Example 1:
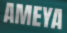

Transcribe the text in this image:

AMEYA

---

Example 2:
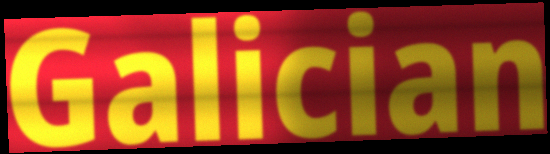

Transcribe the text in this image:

Galician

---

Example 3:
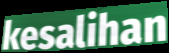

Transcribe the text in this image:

kesalihan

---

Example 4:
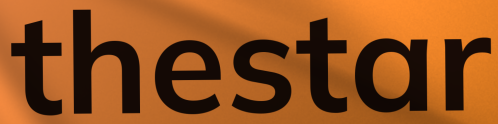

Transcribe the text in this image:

thestar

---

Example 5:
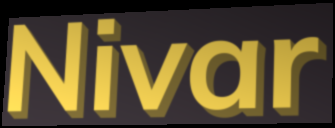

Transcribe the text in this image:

Nivar